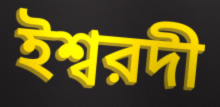
ইশ্বরদী